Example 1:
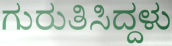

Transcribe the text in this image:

ಗುರುತಿಸಿದ್ದಳು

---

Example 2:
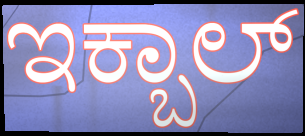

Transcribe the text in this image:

ಇಕ್ಬಾಲ್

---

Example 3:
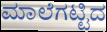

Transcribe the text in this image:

ಮಾಲೆಗಟ್ಟಿದ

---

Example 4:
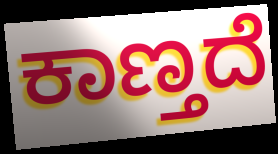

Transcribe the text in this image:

ಕಾಣ್ತದೆ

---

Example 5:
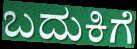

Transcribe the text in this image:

ಬದುಕಿಗೆ